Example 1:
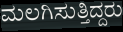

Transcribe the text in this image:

ಮಲಗಿಸುತ್ತಿದ್ದರು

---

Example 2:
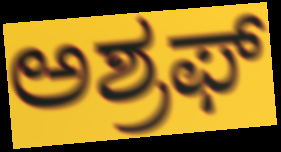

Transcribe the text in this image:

ಅಶ್ರಫ್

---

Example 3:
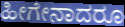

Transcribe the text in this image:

ಹೀಗೇನಾದರೂ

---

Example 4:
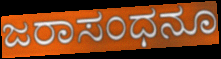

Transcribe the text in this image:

ಜರಾಸಂಧನೂ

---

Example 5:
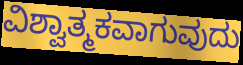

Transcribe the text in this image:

ವಿಶ್ವಾತ್ಮಕವಾಗುವುದು